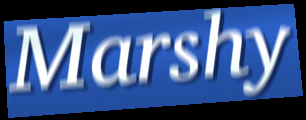
Marshy